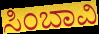
ಸಿಂಬಾವಿ